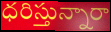
ధరిస్తున్నారా